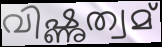
വിഷ്ണുത്വമ്